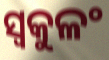
ସ୍ୱକୁଳଂ